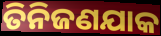
ତିନିଜଣଯାକ